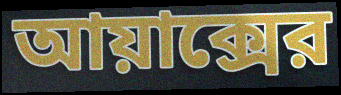
আয়াক্সের